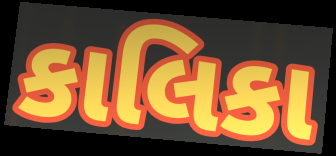
કાલિકા